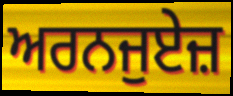
ਅਰਨਜੁਏਜ਼